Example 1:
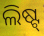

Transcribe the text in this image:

ଲିଷ୍ଟ୍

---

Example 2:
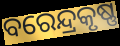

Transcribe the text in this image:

ବରେନ୍ଦ୍ରକୃଷ୍ଣ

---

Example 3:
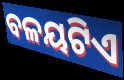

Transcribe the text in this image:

ବଳୟଟିଏ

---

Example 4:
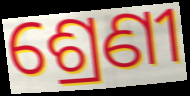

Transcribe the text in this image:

ଶ୍ରେଣୀ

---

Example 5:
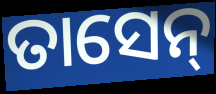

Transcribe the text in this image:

ତାସେନ୍